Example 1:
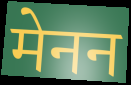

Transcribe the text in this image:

मेनन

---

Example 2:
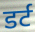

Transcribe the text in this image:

डर्ट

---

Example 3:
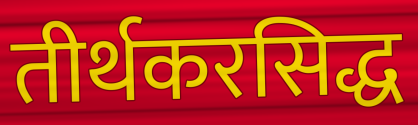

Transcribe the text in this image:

तीर्थकरसिद्ध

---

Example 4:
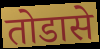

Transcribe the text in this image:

तोडासे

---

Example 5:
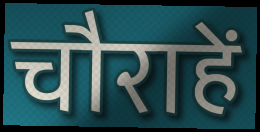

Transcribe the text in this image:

चौराहें